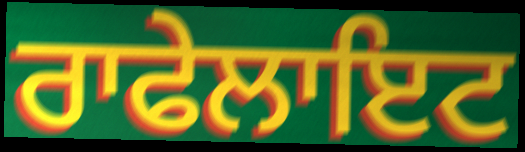
ਰਾਫੇਲਾਇਟ